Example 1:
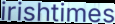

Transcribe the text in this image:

irishtimes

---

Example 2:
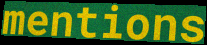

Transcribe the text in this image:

mentions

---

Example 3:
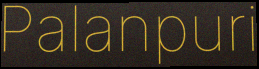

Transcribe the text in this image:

Palanpuri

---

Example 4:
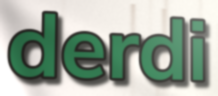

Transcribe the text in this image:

derdi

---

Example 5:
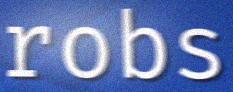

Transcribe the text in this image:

robs